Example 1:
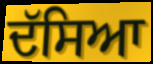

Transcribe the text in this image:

ਦੱਸਿਆ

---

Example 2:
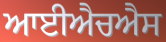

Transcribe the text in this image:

ਆਈਐਚਐਸ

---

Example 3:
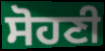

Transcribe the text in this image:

ਸੋਹਣੀ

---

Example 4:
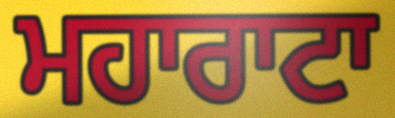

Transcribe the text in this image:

ਮਹਾਰਾਟਾ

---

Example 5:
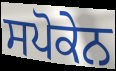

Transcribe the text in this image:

ਸਪੋਕੇਨ